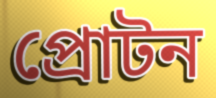
প্রোটন